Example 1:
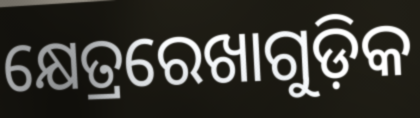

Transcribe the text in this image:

କ୍ଷେତ୍ରରେଖାଗୁଡ଼ିକ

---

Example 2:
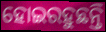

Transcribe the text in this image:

ହୋଇରହୁଛନ୍ତି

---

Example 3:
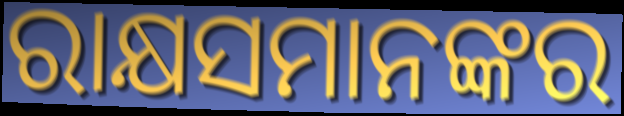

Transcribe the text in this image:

ରାକ୍ଷସମାନଙ୍କର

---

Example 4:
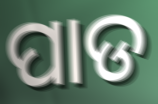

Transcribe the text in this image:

ପାଡ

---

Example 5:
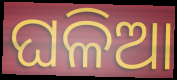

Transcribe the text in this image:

ଘଳିଆ